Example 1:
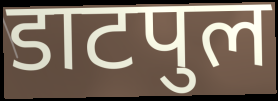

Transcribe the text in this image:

डाटपुल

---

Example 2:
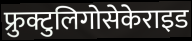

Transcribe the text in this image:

फ्रुक्टुलिगोसेकेराइड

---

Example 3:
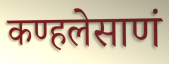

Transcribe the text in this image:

कण्हलेसाणं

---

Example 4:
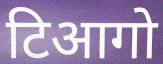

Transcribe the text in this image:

टिआगो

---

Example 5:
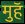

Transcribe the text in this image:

मुहॅ